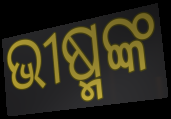
ଭୀଷ୍ମଙ୍କ